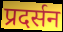
प्रदर्सन